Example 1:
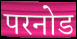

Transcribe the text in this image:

परनोड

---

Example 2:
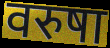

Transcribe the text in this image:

वरुषा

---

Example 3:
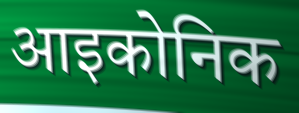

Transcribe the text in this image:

आइकोनिक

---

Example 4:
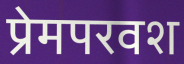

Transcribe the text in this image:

प्रेमपरवश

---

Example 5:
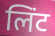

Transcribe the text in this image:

लिंट